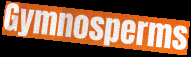
Gymnosperms